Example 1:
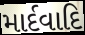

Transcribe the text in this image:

માર્દવાદિ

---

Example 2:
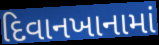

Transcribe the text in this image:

દિવાનખાનામાં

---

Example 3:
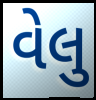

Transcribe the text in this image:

વેલુ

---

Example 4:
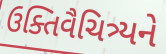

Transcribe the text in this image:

ઉક્તિવૈચિત્ર્યને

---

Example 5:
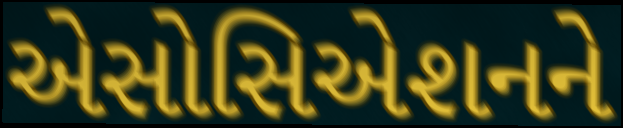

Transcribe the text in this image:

એસોસિએશનને